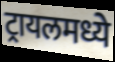
ट्रायलमध्ये